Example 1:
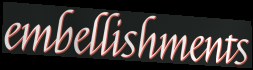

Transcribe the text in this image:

embellishments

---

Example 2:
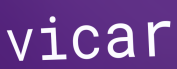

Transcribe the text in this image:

vicar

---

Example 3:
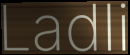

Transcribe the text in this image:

Ladli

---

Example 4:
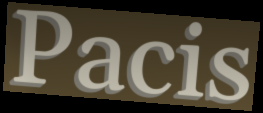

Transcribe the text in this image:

Pacis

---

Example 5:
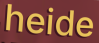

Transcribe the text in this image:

heide